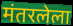
मंतरलेला